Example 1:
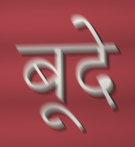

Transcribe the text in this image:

बूदे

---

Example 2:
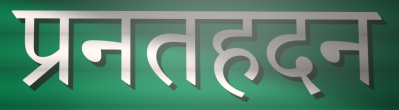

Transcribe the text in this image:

प्रनतहदन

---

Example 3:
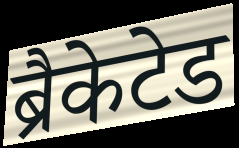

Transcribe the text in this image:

ब्रैकेटेड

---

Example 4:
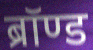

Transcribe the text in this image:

ब्रॉण्ड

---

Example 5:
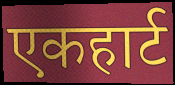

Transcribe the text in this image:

एकहार्ट